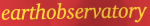
earthobservatory